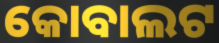
କୋବାଲଟ